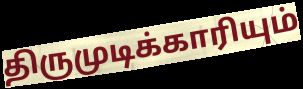
திருமுடிக்காரியும்